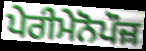
ਪੇਰੀਮੇਨੋਪੌਜ਼